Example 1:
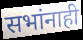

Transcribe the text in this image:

सभांनाही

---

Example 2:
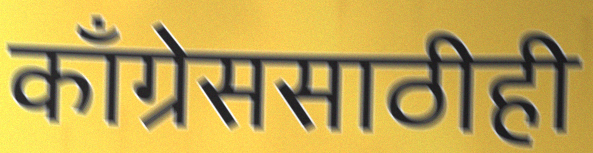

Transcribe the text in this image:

काँग्रेससाठीही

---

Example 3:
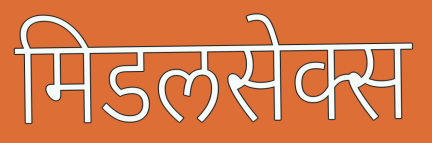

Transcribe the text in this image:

मिडलसेक्स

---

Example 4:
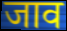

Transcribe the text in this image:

जाव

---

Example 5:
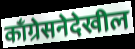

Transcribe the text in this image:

काँग्रेसनेदेखील